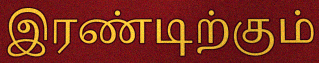
இரண்டிற்கும்